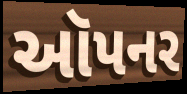
ઑપનર